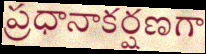
ప్రధానాకర్షణగా